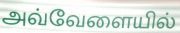
அவ்வேளையில்